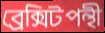
ব্রেক্সিটপন্থী